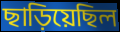
ছাড়িয়েছিল